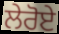
ਲੇਰੋਏ